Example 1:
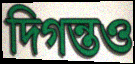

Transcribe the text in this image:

দিগন্তও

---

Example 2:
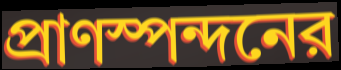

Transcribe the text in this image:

প্রাণস্পন্দনের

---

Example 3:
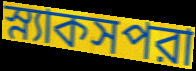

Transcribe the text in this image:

স্ন্যাকসপরা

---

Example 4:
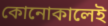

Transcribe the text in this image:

কোনোকালেই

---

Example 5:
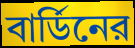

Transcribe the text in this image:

বার্ডিনের